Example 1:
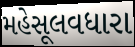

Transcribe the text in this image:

મહેસૂલવધારા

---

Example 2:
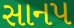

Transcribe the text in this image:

સાનપ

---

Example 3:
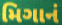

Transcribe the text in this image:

મિગાનં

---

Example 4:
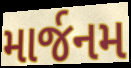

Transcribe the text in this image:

માર્જનમ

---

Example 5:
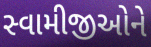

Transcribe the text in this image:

સ્વામીજીઓને